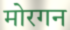
मोरगन